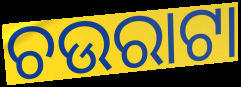
ଚଉରାଟା